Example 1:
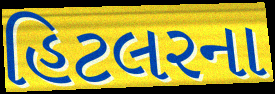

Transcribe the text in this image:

હિટલરના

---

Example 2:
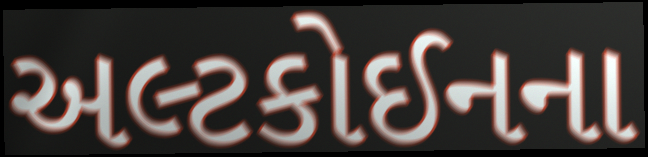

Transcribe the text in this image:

અલ્ટકોઈનના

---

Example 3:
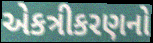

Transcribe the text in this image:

એકત્રીકરણનો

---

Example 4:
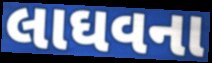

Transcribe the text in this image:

લાઘવના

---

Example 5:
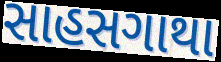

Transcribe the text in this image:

સાહસગાથા